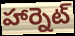
హార్నెట్